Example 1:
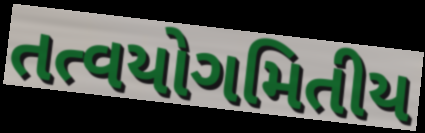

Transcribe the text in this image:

તત્વયોગમિતીય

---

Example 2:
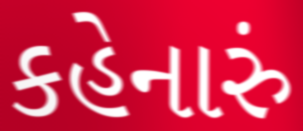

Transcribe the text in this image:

કહેનારું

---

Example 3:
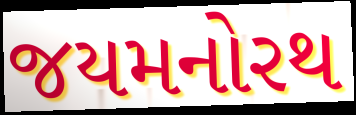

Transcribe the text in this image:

જયમનોરથ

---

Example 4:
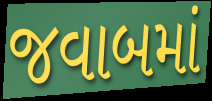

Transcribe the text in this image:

જવાબમાં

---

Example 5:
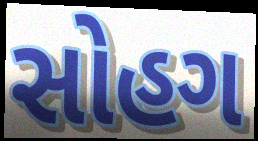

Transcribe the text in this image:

સોહગ